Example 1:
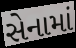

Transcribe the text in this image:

સેનામાં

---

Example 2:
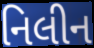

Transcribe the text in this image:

નિલીન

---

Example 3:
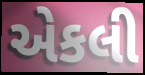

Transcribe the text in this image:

એકલી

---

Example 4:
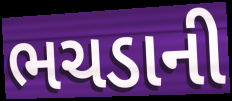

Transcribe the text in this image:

ભચડાની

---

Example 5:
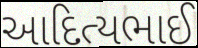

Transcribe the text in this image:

આદિત્યભાઈ